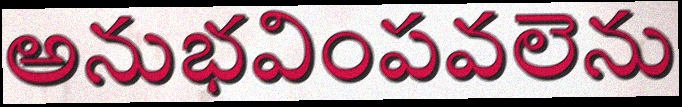
అనుభవింపవలెను